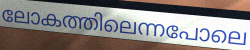
ലോകത്തിലെന്നപോലെ